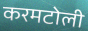
करमटोली